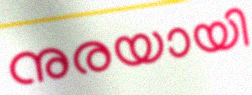
നുരയായി